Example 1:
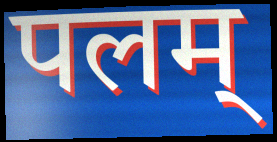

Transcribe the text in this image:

पलम्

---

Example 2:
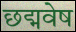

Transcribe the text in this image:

छद्मवेष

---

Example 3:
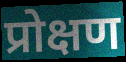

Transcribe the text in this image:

प्रोक्षण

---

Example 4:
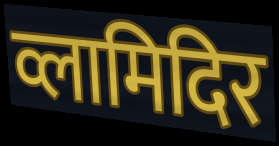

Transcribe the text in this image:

व्लामिदिर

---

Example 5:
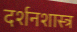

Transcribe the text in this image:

दर्शनशास्त्र